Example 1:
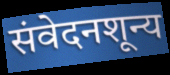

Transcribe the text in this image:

संवेदनशून्य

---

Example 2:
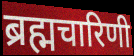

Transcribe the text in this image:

ब्रह्मचारिणी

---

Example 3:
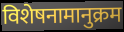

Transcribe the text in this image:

विशेषनामानुक्रम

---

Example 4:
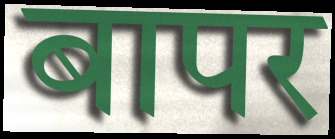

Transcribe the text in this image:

बापर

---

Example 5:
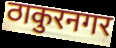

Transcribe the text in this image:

ठाकुरनगर